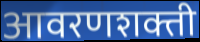
आवरणशक्ती